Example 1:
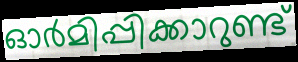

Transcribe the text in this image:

ഓർമിപ്പിക്കാറുണ്ട്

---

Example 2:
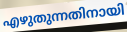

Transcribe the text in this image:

എഴുതുന്നതിനായി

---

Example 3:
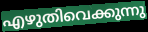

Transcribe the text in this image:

എഴുതിവെക്കുന്നു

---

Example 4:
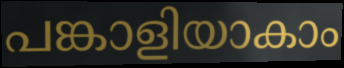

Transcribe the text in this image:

പങ്കാളിയാകാം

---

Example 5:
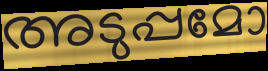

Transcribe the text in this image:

അടുപ്പമോ